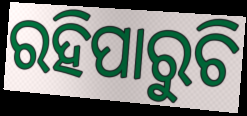
ରହିପାରୁଚି